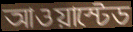
আওয়াস্টেড